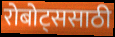
रोबोट्ससाठी